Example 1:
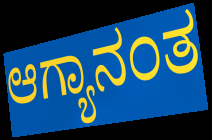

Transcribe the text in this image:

ಆಗ್ಯಾನಂತ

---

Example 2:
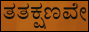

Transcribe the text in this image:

ತತಕ್ಷಣವೇ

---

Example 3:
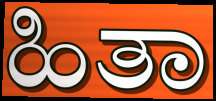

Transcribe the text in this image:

ಹಿತಾ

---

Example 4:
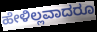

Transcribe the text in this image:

ಹೇಳಿಲ್ಲವಾದರೂ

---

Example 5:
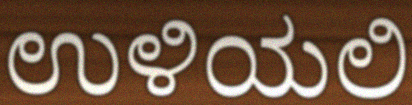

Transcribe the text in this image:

ಉಳಿಯಲಿ